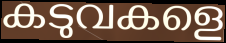
കടുവകളെ